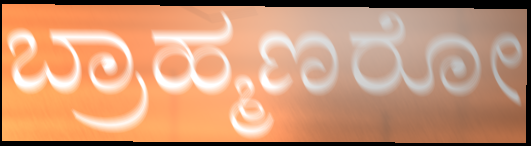
ಬ್ರಾಹ್ಮಣರೋ